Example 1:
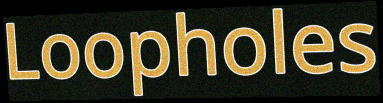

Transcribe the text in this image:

Loopholes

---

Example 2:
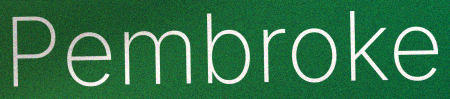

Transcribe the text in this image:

Pembroke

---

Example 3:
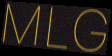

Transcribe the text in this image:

MLG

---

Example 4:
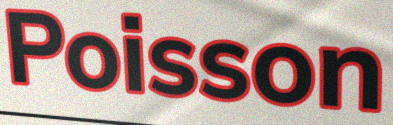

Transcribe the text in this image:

Poisson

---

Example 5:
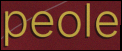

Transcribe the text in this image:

peole